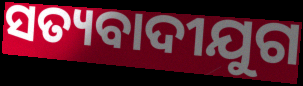
ସତ୍ୟବାଦୀଯୁଗ